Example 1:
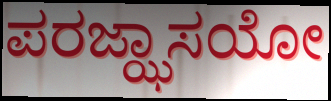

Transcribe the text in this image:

ಪರಜ್ಝಾಸಯೋ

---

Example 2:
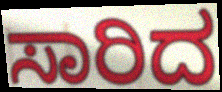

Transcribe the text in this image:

ಸಾರಿದ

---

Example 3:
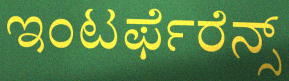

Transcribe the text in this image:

ಇಂಟರ್ಫೆರೆನ್ಸ್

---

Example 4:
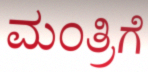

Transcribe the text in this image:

ಮಂತ್ರಿಗೆ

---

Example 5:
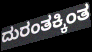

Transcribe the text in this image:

ದುರಂತಕ್ಕಿಂತ